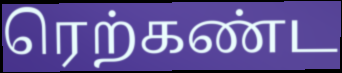
ரெற்கண்ட